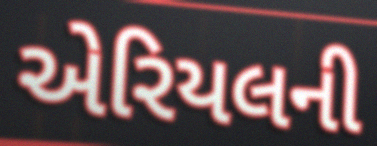
એરિયલની